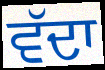
ਵੱਦਾ